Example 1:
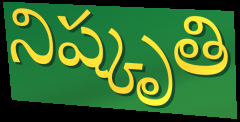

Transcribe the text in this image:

నిష్కృతి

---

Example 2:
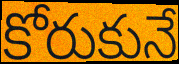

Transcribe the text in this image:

కోరుకునే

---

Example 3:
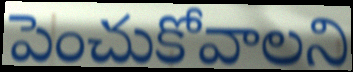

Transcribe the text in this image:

పెంచుకోవాలని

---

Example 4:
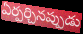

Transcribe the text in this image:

ఏర్పర్చినప్పుడు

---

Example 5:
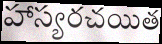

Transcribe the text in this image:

హాస్యరచయిత